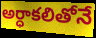
అర్ధాకలితోనే